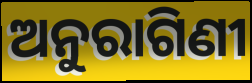
ଅନୁରାଗିଣୀ